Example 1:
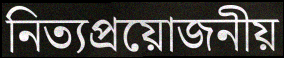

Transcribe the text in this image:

নিত্যপ্রয়োজনীয়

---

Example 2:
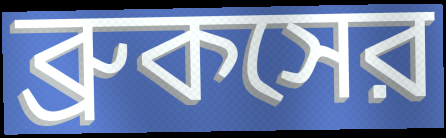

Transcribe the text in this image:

ব্রুকসের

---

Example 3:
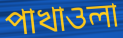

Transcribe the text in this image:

পাখাওলা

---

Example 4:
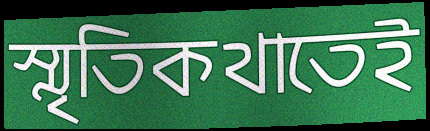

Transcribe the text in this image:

স্মৃতিকথাতেই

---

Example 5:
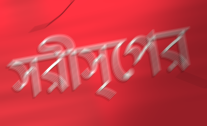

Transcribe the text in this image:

সরীসৃপের